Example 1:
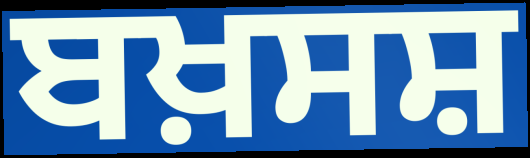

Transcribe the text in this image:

ਬਖ਼ਸਸ਼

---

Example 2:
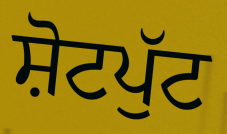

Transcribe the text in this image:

ਸ਼ੋਟਪੁੱਟ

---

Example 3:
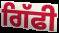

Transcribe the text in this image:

ਗਿੱਫੀ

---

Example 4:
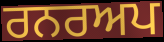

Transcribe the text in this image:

ਰਨਰਅਪ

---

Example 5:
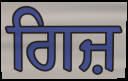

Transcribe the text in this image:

ਗਿਜ਼